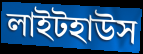
লাইটহাউস